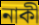
নাকী